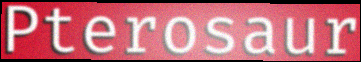
Pterosaur